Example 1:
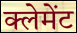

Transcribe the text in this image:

क्लेमेंट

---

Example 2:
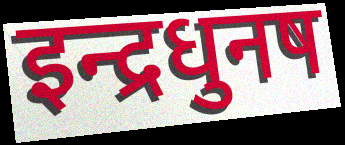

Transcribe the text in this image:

इन्द्रधुनष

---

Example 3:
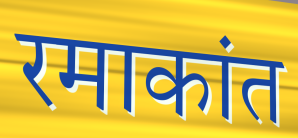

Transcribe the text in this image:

रमाकांत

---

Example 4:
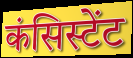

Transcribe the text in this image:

कंसिस्टेंट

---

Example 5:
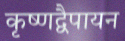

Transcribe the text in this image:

कृष्णद्वैपायन